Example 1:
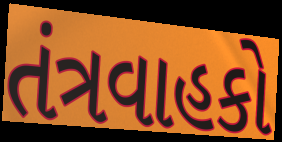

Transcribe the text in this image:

તંત્રવાહકો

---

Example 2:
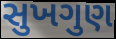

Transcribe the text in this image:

સુખગુણ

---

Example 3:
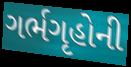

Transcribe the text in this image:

ગર્ભગૃહોની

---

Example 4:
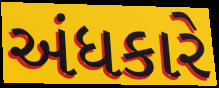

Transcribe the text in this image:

અંધકારે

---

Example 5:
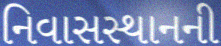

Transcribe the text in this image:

નિવાસસ્થાનની